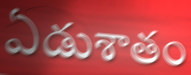
ఏడుశాతం